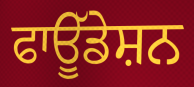
ਫਾਊੱਡੇਸ਼ਨ